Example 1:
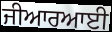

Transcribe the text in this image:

ਜੀਆਰਆਈ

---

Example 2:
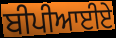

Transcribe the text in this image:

ਬੀਪੀਆਈਏ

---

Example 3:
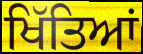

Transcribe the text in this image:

ਖਿੱਤਿਆਂ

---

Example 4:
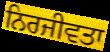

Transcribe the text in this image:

ਨਿਰਜੀਵਤਾ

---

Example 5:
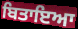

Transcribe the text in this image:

ਬਿਤਾਇਆ